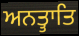
ਅਨਤ੍ਤਾਤਿ